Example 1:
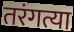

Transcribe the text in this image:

तरंगत्या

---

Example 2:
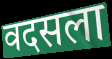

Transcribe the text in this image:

वदसला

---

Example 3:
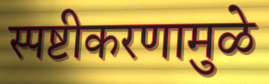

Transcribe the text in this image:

स्पष्टीकरणामुळे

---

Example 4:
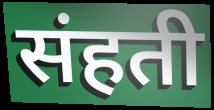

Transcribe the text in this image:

संहती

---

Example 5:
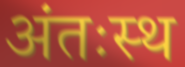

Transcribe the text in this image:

अंतःस्थ